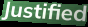
Justified